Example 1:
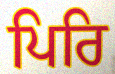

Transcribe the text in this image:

ਪਿਰਿ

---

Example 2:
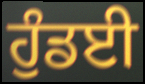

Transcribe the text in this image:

ਹੁੰਡਈ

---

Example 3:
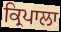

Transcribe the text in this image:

ਕ੍ਰਿਪਾਲਾ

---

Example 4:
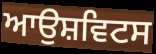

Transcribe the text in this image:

ਆਉਸ਼ਵਿਟਸ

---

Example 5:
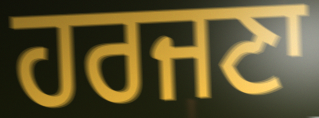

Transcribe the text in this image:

ਹਰਜਣਾ